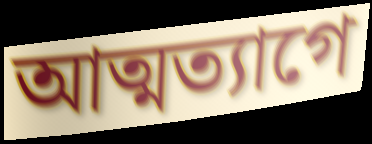
আত্মত্যাগে